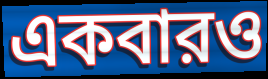
একবারও